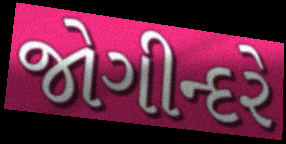
જોગીન્દરે